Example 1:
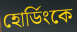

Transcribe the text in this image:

হোর্ডিংকে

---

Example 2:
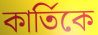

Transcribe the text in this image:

কার্তিকে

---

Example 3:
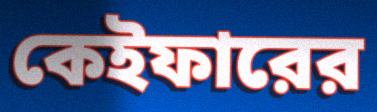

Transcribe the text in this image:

কেইফারের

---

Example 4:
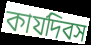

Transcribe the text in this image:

কার্যদিবস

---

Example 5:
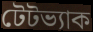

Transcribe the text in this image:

টেটভ্যাক